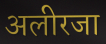
अलीरजा